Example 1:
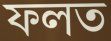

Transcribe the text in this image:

ফলত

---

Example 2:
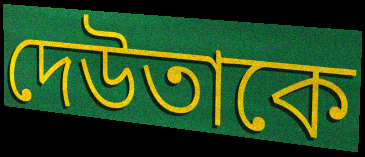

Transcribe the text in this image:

দেউতাকে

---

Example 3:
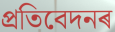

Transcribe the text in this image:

প্ৰতিবেদনৰ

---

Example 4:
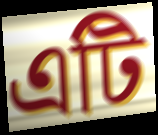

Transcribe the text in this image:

এটি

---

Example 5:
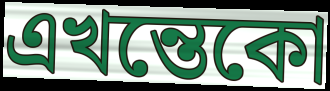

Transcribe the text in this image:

এখন্তেকো